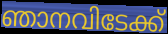
ഞാനവിടേക്ക്